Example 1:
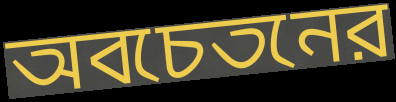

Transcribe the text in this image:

অবচেতনের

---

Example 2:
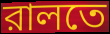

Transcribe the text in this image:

রালতে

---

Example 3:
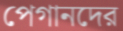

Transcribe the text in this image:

পেগানদের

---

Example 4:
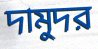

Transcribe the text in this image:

দামুদর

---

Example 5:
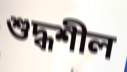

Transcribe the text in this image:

শুদ্ধশীল